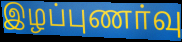
இழப்புணர்வு